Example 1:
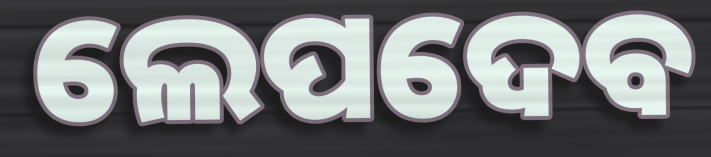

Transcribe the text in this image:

ଲେପଦେବ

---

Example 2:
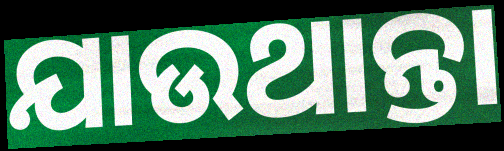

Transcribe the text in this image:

ଯାଉଥାନ୍ତା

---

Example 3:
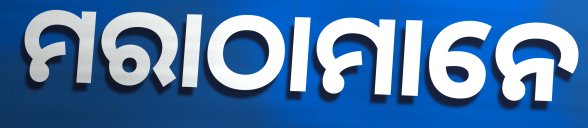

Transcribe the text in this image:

ମରାଠାମାନେ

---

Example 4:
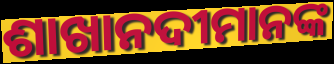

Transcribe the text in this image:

ଶାଖାନଦୀମାନଙ୍କ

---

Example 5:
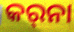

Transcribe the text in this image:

କର୍‌ନା